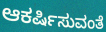
ಆಕರ್ಷಿಸುವಂತೆ